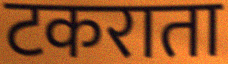
टकराता